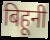
बिहूनी